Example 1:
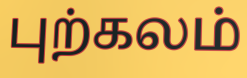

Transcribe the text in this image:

புற்கலம்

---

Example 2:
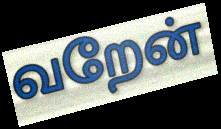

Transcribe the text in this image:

வறேன்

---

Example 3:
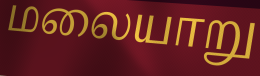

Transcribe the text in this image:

மலையாறு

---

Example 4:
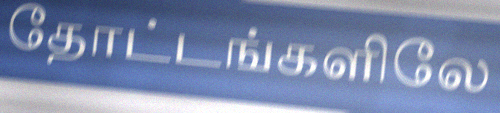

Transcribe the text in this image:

தோட்டங்களிலே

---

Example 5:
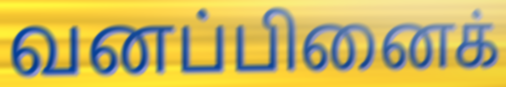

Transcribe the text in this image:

வனப்பினைக்